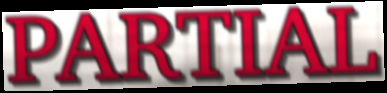
PARTIAL